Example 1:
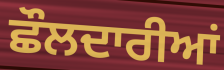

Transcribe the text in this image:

ਛੌਲਦਾਰੀਆਂ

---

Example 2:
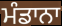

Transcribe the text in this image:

ਮੰਡਾਨਾ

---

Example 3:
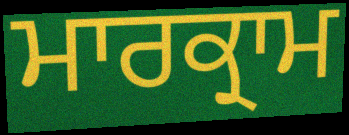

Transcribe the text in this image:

ਮਾਰਕ੍ਰਾਮ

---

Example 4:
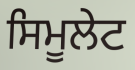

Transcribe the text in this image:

ਸਿਮੂਲੇਟ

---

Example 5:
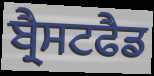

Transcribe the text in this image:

ਬ੍ਰੈਸਟਫੈਡ